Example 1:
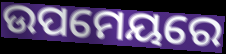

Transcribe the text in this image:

ଉପମେୟରେ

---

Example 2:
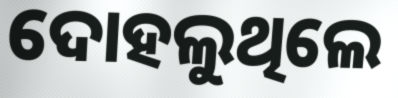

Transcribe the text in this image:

ଦୋହଲୁଥିଲେ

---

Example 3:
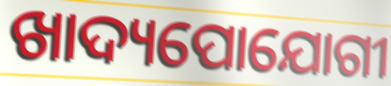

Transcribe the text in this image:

ଖାଦ୍ୟପୋଯୋଗୀ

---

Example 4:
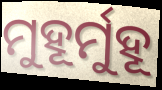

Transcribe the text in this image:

ମୁହୂର୍ମୁହୂ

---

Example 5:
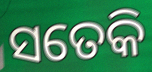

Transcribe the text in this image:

ସତେକି